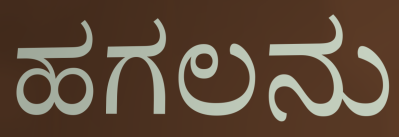
ಹಗಲನು